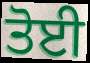
ਤੋਈ